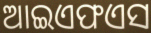
ଆଇଏଫଏସ